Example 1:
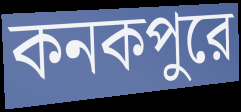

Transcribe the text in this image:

কনকপুরে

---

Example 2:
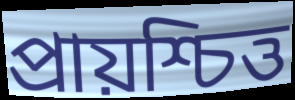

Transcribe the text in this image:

প্রায়শ্চিত্ত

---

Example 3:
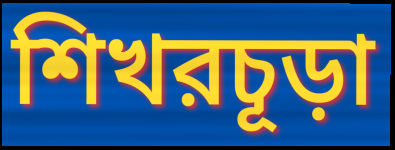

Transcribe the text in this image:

শিখরচূড়া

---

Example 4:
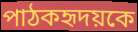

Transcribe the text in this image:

পাঠকহৃদয়কে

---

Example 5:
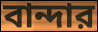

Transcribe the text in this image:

বান্দার